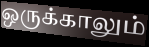
ஒருக்காலும்